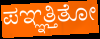
ಪಞ್ಞತ್ತಿತೋ